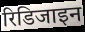
रिडिजाइन